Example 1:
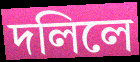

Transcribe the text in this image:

দলিলে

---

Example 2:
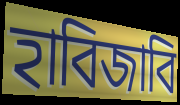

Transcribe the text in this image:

হাবিজাবি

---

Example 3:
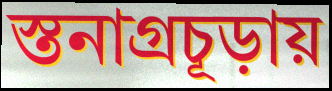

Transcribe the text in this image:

স্তনাগ্রচূড়ায়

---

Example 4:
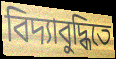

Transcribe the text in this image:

বিদ্যাবুদ্ধিতে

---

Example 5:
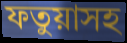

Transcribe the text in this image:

ফতুয়াসহ